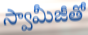
స్వామీజీతో